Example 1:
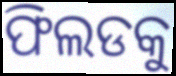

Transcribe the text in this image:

ଫିଲଡକୁ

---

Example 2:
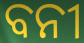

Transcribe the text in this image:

ବନୀ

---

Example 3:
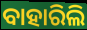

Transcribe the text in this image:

ବାହାରିଲି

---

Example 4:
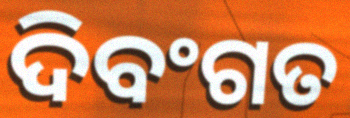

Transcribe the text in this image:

ଦିବଂଗତ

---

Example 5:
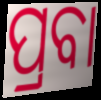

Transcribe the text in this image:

ପ୍ରବା